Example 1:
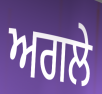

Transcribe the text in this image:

ਅਗਲੇ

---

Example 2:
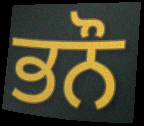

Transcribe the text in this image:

ਭਨੌ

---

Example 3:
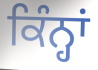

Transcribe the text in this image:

ਕਿੰਨ੍ਹਾਂ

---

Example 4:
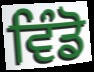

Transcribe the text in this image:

ਵਿੰਡੋ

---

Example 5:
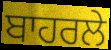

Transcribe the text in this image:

ਬਾਹਰਲੇ